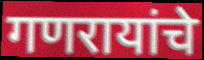
गणरायांचे